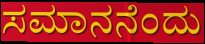
ಸಮಾನನೆಂದು